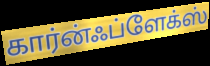
கார்ன்ஃப்ளேக்ஸ்